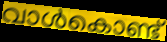
വാൾകൊണ്ട്